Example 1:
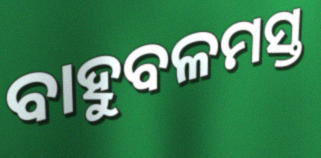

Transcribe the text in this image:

ବାହୁବଳମସ୍ତ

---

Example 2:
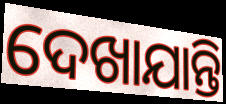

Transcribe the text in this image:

ଦେଖାଯାନ୍ତି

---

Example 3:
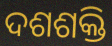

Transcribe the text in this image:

ଦଶଶକ୍ତି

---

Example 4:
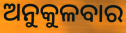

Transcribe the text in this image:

ଅନୁକୁଳବାର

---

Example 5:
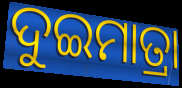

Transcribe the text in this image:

ଦୁଇମାତ୍ରା